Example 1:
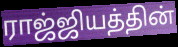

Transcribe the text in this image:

ராஜ்ஜியத்தின்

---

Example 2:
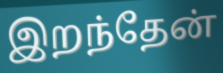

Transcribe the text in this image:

இறந்தேன்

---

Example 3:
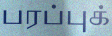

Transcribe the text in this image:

பரப்புக்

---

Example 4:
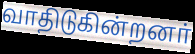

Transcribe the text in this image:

வாதிடுகின்றனர்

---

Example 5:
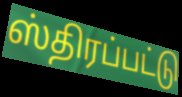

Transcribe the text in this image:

ஸ்திரப்பட்டு